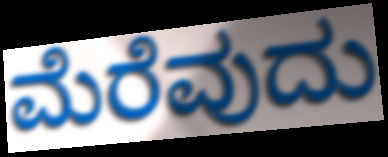
ಮೆರೆವುದು